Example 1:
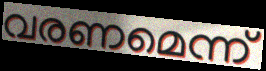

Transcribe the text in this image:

വരണമെന്ന്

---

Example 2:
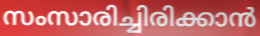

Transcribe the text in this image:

സംസാരിച്ചിരിക്കാൻ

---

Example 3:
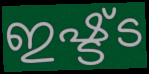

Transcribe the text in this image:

ഇഷ്ട്ട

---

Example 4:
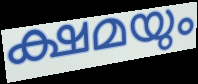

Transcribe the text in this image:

ക്ഷമയും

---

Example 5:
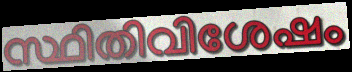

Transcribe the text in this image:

സ്ഥിതിവിശേഷം